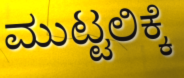
ಮುಟ್ಟಲಿಕ್ಕೆ